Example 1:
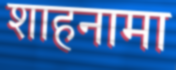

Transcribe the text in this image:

शाहनामा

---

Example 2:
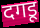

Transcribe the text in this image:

दगडू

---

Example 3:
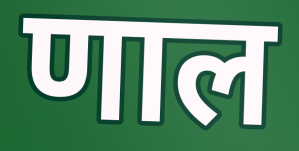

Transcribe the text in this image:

णाल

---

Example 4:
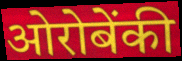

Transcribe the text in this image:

ओरोबेंकी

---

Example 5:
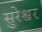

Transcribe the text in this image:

सुरेश्वर